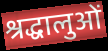
श्रद्धालुओं